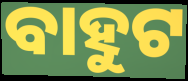
ବାହୁଟ